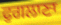
ਫੁਗਲਾਣਾ